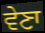
ਵੇਣਾ